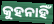
କୁହନାହିଁ